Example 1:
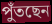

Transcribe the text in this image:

পুঁতছেন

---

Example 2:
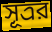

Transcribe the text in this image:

সূত্রর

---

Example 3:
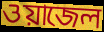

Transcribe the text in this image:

ওয়াজেল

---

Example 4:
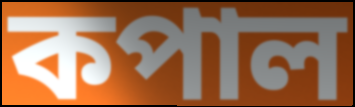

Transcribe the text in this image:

কপাল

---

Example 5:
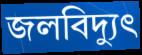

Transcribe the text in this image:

জলবিদ্যুৎ